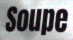
Soupe